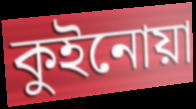
কুইনোয়া